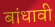
बांधावी